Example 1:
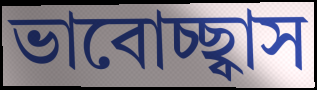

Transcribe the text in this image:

ভাবোচ্ছ্বাস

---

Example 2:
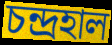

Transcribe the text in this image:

চন্দ্ৰহাল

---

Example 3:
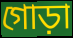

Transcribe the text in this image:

গোড়া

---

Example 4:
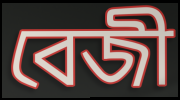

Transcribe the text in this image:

বেজী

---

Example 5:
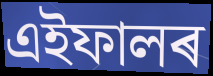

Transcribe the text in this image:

এইফালৰ